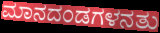
ಮಾನದಂಡಗಳನತು